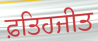
ਫ਼ਤਿਹਜੀਤ